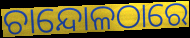
ଚାନ୍ଦୋଳଠାରେ